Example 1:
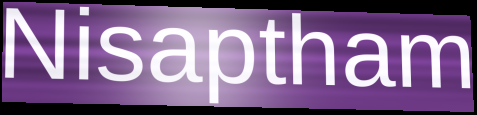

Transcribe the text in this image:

Nisaptham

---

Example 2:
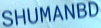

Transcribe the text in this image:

SHUMANBD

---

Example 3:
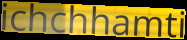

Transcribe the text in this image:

ichchhamti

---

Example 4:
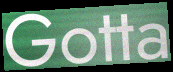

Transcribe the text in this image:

Gotta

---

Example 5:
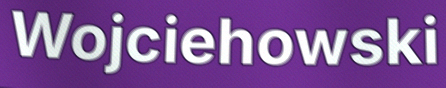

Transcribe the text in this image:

Wojciehowski